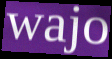
wajo